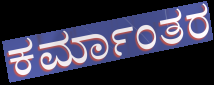
ಕರ್ಮಾಂತರ